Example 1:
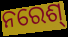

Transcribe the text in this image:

ନରେଶ୍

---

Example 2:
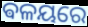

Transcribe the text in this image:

ଵଳୟରେ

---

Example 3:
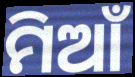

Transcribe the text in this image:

ମିଆଁ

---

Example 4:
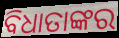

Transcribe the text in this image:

ବିଧାତାଙ୍କର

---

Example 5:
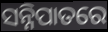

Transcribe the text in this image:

ସନ୍ନିପାତରେ